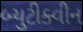
બ્યુટીક્વીન